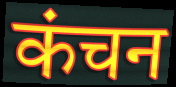
कंचन